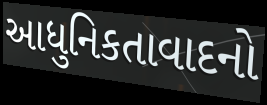
આધુનિકતાવાદનો